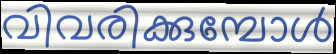
വിവരിക്കുമ്പോൾ